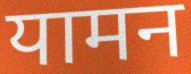
यामन